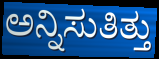
ಅನ್ನಿಸುತಿತ್ತು